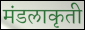
मंडलाकृती